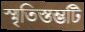
স্মৃতিস্তম্ভটি